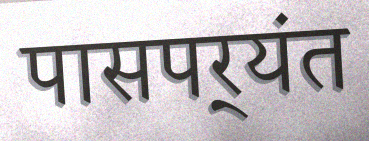
पासपर्यंत